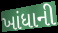
ખાંધાની